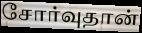
சோர்வுதான்